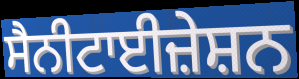
ਸੈਨੀਟਾਈਜ਼ੇਸ਼ਨ